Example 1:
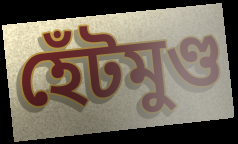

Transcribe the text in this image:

হেঁটমুণ্ড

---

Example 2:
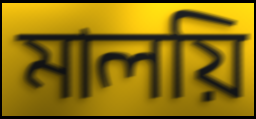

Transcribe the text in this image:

মালয়ি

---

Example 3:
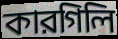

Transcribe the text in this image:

কারগিলি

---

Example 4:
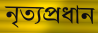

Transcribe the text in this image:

নৃত্যপ্রধান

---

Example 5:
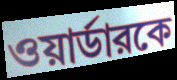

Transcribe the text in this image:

ওয়ার্ডারকে